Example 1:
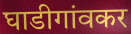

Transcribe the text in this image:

घाडीगांवकर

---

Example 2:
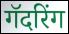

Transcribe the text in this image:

गॅदरिंग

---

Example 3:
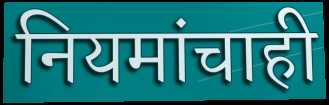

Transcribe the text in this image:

नियमांचाही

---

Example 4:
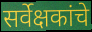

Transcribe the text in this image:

सर्वेक्षकांचे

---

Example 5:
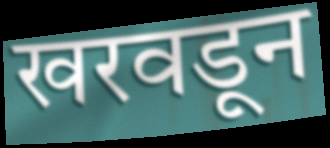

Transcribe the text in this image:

खरवडून